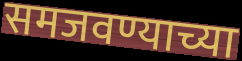
समजवण्याच्या